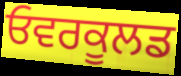
ਓਵਰਕੂਲਡ